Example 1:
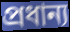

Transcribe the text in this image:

প্রধান্য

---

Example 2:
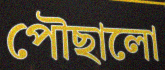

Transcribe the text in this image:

পৌছালো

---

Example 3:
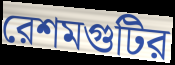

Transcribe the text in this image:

রেশমগুটির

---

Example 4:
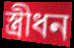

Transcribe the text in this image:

স্ত্রীধন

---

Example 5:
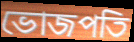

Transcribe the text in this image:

ভোজপতি